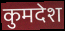
कुमदेश